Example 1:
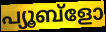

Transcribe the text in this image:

പ്യൂബ്ളോ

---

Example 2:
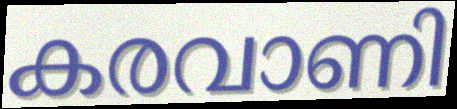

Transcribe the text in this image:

കരവാണി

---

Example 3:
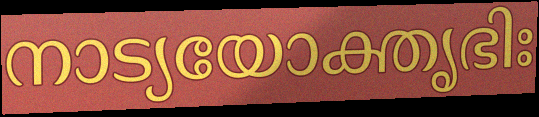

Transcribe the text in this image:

നാട്യയോക്തൃഭിഃ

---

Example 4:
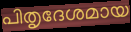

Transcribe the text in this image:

പിതൃദേശമായ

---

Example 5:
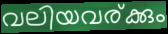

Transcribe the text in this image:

വലിയവര്ക്കും